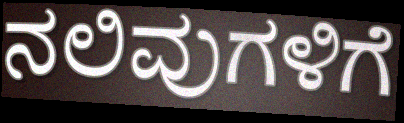
ನಲಿವುಗಳಿಗೆ